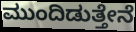
ಮುಂದಿಡುತ್ತೇನೆ